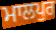
ਮਾਲਪੁਰ